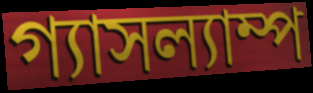
গ্যাসল্যাম্প